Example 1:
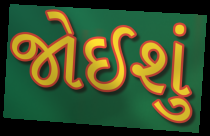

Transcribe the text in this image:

જોઈશું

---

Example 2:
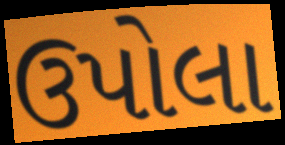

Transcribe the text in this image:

ઉપોલા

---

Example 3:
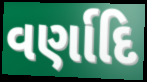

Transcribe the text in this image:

વર્ણાદિ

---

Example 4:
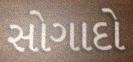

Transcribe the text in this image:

સોગાદો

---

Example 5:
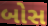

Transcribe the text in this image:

બોસ